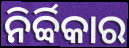
ନିର୍ବ୍ବିକାର